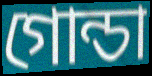
গোন্ডা